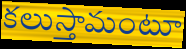
కలుస్తామంటూ